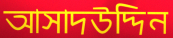
আসাদউদ্দিন